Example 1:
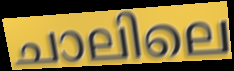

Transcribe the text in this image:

ചാലിലെ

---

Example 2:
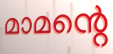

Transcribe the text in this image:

മാമന്റെ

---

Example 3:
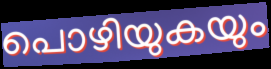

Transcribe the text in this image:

പൊഴിയുകയും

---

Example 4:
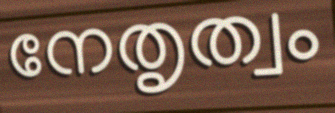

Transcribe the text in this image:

നേതൃത്വം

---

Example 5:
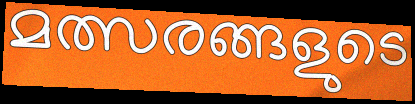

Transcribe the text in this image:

മത്സരങ്ങളുടെ